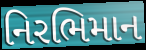
નિરભિમાન